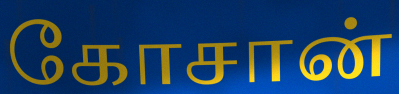
கோசான்